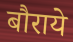
बौराये